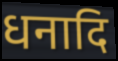
धनादि